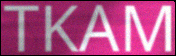
TKAM